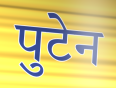
पुटेन